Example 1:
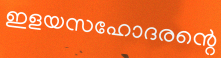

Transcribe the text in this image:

ഇളയസഹോദരന്റെ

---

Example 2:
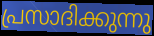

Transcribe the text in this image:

പ്രസാദിക്കുന്നു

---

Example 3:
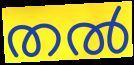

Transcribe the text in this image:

തൽ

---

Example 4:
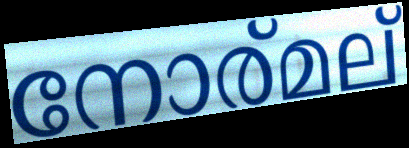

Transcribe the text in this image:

നോര്മല്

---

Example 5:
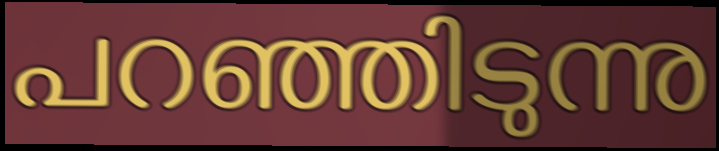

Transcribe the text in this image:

പറഞ്ഞിടുന്നു